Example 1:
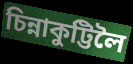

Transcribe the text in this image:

চিন্নাকুট্টিলৈ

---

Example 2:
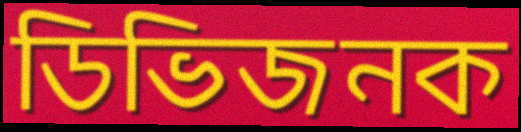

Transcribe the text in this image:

ডিভিজনক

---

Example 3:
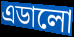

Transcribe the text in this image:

এডালো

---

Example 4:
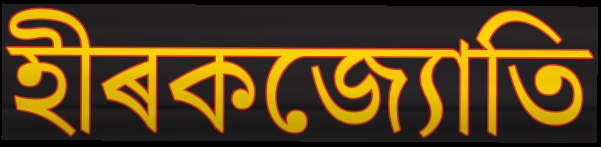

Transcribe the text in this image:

হীৰকজ্যোতি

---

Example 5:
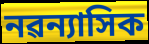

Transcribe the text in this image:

নৱন্যাসিক